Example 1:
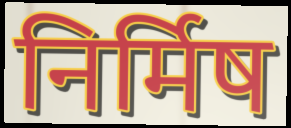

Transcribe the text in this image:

निर्मिष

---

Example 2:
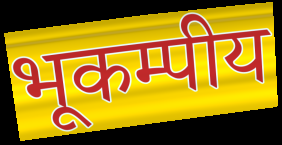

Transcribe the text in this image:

भूकम्पीय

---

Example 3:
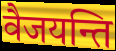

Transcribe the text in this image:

वैजयन्ति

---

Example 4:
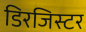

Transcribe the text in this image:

डिरजिस्टर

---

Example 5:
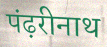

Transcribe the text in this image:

पंढ़रीनाथ